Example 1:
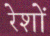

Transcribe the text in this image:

रेशों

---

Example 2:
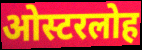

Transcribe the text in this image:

ओस्टरलोह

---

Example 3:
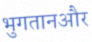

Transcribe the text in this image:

भुगतानऔर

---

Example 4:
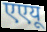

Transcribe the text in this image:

एएयू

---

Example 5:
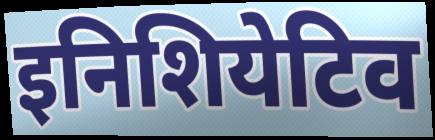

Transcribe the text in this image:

इनिशियेटिव